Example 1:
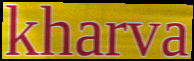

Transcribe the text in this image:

kharva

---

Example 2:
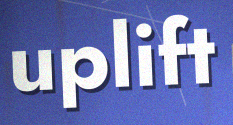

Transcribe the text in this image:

uplift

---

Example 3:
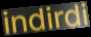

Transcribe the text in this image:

indirdi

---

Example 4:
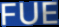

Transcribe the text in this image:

FUE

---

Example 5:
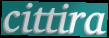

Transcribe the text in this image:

cittira